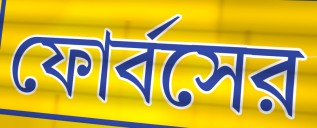
ফোর্বসের